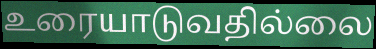
உரையாடுவதில்லை